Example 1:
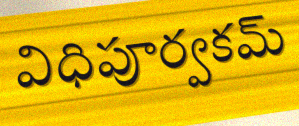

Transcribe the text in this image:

విధిపూర్వకమ్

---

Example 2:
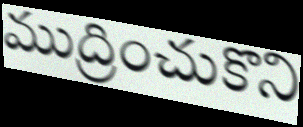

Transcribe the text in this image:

ముద్రించుకొని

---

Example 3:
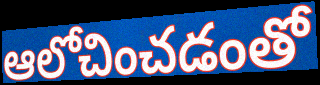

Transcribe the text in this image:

ఆలోచించడంతో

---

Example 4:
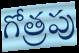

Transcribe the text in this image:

గోత్రపు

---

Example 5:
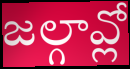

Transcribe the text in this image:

జల్గావ్లో